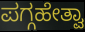
ಪಗ್ಗಹೇತ್ವಾ